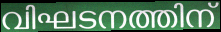
വിഘടനത്തിന്